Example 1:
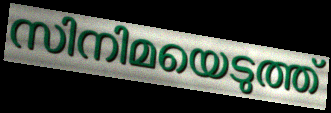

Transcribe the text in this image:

സിനിമയെടുത്ത്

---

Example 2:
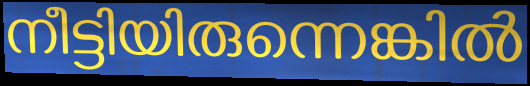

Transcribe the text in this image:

നീട്ടിയിരുന്നെങ്കിൽ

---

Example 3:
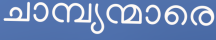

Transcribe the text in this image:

ചാമ്പ്യന്മാരെ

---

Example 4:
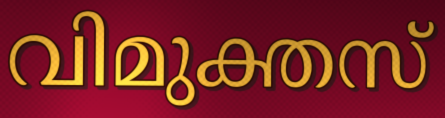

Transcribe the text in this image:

വിമുക്തസ്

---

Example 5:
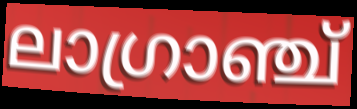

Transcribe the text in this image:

ലാഗ്രാഞ്ച്